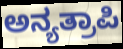
ಅನ್ಯತ್ರಾಪಿ